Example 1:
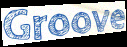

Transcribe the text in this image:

Groove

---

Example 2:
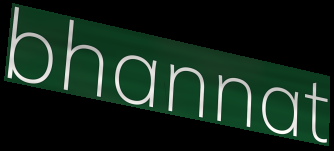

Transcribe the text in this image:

bhannat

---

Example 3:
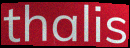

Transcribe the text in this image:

thalis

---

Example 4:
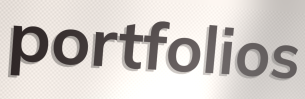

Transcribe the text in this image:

portfolios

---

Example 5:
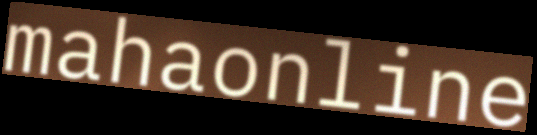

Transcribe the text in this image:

mahaonline